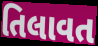
તિલાવત